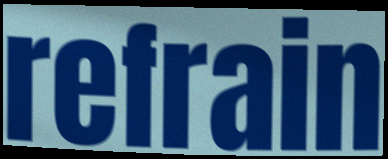
refrain